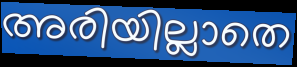
അരിയില്ലാതെ